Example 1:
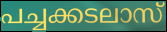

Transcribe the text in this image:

പച്ചക്കടലാസ്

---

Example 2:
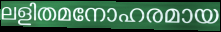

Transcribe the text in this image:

ലളിതമനോഹരമായ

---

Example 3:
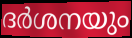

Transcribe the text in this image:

ദർശനയും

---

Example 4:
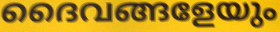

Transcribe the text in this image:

ദൈവങ്ങളേയും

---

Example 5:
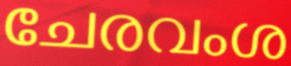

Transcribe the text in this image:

ചേരവംശ